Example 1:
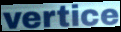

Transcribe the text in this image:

vertice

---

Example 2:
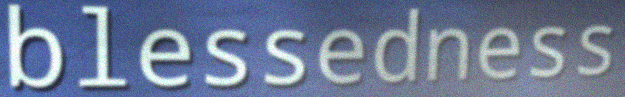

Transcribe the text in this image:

blessedness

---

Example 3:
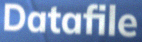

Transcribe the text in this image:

Datafile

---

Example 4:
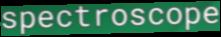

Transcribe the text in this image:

spectroscope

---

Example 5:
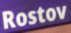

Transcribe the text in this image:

Rostov